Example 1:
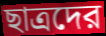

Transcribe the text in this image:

ছাত্রদের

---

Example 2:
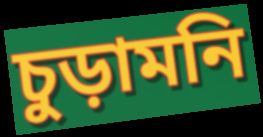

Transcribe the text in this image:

চুড়ামনি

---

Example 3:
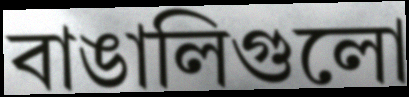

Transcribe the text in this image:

বাঙালিগুলো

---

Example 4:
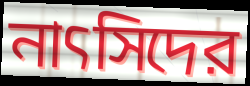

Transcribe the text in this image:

নাৎসিদের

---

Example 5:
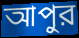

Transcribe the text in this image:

আপুর